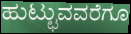
ಹುಟ್ಟುವವರೆಗೂ